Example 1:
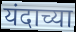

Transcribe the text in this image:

यंदाच्या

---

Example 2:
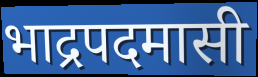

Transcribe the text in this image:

भाद्रपदमासी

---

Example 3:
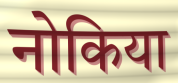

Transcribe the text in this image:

नोकिया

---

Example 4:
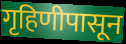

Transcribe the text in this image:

गृहिणीपासून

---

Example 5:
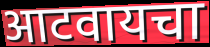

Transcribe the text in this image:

आटवायचा